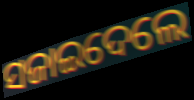
ସଜାଇଦେଲେ